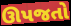
ઊપજતો